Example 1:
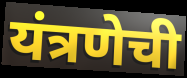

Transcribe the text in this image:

यंत्रणेची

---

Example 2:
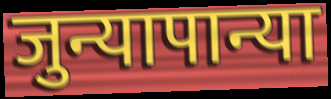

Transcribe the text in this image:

जुन्यापान्या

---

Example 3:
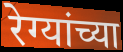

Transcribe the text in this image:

रेग्यांच्या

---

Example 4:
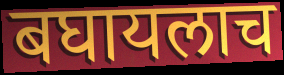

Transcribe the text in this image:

बघायलाच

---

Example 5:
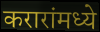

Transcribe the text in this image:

करारांमध्ये